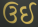
ઉઈ